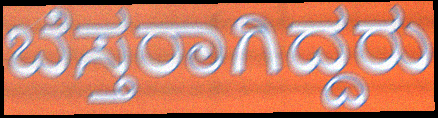
ಬೆಸ್ತರಾಗಿದ್ದರು